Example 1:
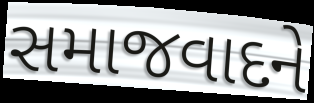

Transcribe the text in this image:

સમાજવાદને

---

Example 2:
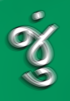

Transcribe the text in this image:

જું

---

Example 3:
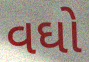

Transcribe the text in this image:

વઘો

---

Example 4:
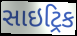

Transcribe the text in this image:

સાઇટ્રિક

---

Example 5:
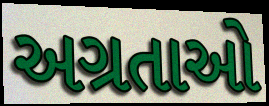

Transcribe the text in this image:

અગ્રતાઓ